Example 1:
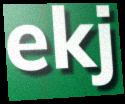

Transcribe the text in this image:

ekj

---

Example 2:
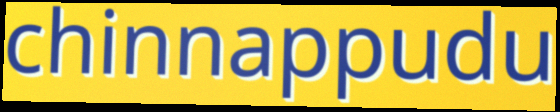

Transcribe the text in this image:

chinnappudu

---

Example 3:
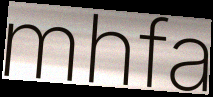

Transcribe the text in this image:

mhfa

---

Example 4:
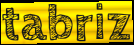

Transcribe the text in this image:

tabriz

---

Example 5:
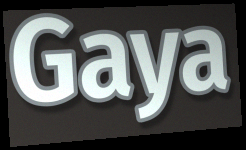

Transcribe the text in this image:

Gaya